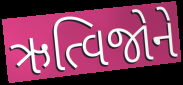
ઋત્વિજોને